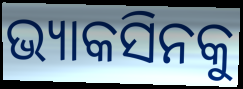
ଭ୍ୟାକସିନକୁ